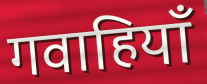
गवाहियाँ